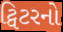
ટ્વિટરનો